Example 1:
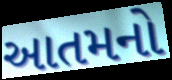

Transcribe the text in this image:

આતમનો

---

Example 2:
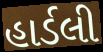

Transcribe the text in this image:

હાર્ડલી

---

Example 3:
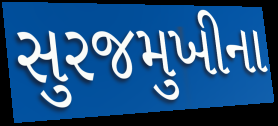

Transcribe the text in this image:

સુરજમુખીના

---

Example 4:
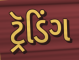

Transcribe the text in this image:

ટ્રૅડિંગ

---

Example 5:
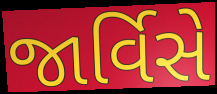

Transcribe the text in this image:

જાર્વિસે